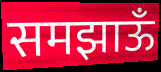
समझाऊँ